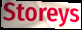
Storeys